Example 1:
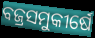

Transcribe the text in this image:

ବଜ୍ରସମୁକୀର୍ଷେ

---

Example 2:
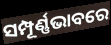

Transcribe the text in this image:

ସମ୍ପୂର୍ଣ୍ଣଭାବରେ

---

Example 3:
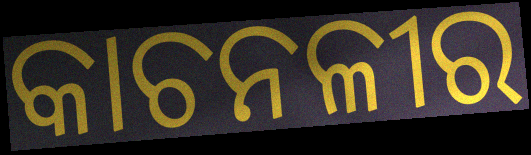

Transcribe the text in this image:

କାଚନଳୀର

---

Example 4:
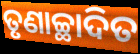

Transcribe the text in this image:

ତୃଣାଚ୍ଛାଦିତ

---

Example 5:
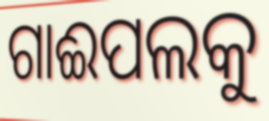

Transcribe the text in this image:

ଗାଈପଲକୁ